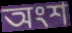
অংশ